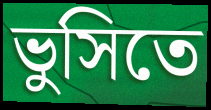
ভুসিতে